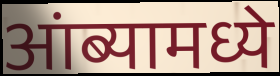
आंब्यामध्ये